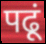
पढूं